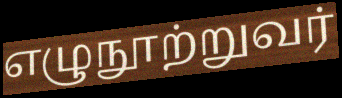
எழுநூற்றுவர்